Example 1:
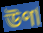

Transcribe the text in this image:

ঊণা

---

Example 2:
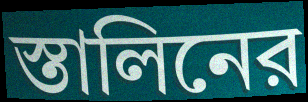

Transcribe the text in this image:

স্তালিনের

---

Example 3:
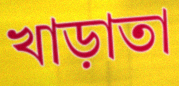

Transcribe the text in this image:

খাড়াতা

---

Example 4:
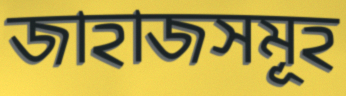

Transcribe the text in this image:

জাহাজসমূহ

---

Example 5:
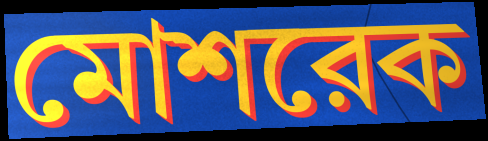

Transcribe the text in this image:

মোশরেক